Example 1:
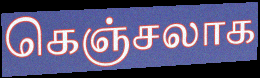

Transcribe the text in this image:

கெஞ்சலாக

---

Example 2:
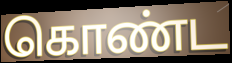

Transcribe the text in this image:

கொண்ட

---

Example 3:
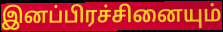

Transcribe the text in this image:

இனப்பிரச்சினையும்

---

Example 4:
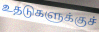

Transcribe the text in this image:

உதடுகளுக்குச்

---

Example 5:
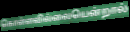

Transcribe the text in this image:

கொள்ளவில்லையென்றால்